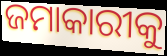
ଜମାକାରୀକୁ